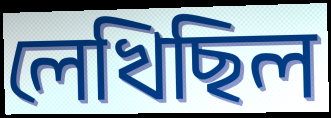
লেখিছিল